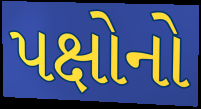
પક્ષોનો